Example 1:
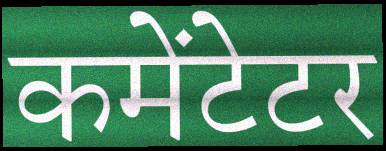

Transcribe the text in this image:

कमेंटेटर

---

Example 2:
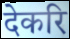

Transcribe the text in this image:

देकरि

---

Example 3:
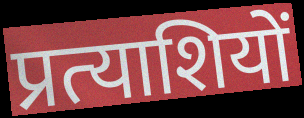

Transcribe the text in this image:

प्रत्‍याशियों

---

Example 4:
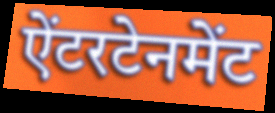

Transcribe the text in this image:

ऐंटरटेनमेंट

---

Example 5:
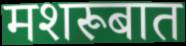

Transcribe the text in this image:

मशरूबात